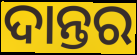
ଦାନ୍ତର